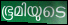
ഭൂമിയുടെ